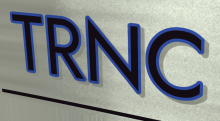
TRNC